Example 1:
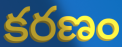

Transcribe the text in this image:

కరణం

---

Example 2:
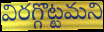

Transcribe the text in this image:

విరగ్గొట్టమని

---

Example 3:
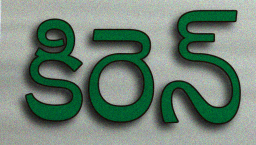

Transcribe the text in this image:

కిరెన్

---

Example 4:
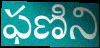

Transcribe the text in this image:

ఫణిని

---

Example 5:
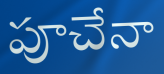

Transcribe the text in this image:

పూచేనా